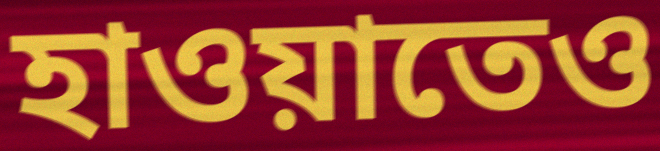
হাওয়াতেও